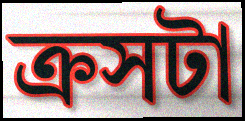
ক্রসটা